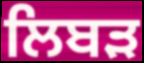
ਲਿਬੜ